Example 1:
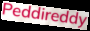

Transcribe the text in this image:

Peddireddy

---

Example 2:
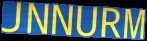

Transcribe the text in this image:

JNNURM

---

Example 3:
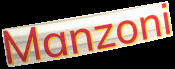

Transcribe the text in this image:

Manzoni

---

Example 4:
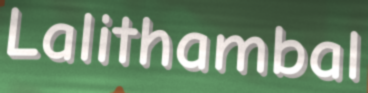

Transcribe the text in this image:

Lalithambal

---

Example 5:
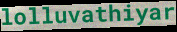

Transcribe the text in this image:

lolluvathiyar